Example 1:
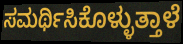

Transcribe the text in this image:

ಸಮರ್ಥಿಸಿಕೊಳ್ಳುತ್ತಾಳೆ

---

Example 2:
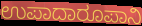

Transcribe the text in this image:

ಉಪಾದಾರೂಪಾನಿ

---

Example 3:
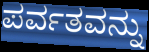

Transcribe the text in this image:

ಪರ್ವತವನ್ನು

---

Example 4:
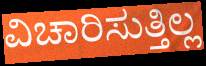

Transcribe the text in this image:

ವಿಚಾರಿಸುತ್ತಿಲ್ಲ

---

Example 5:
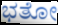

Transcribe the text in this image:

ಭತೋ